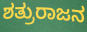
ಶತ್ರುರಾಜನ